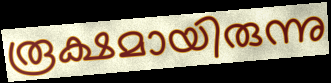
രൂക്ഷമായിരുന്നു